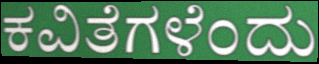
ಕವಿತೆಗಳೆಂದು